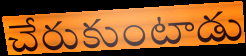
చేరుకుంటాడు